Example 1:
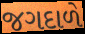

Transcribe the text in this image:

જગદાળે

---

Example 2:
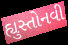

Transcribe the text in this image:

હ્યુસ્તોનવી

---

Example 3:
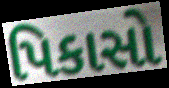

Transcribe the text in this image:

પિકાસો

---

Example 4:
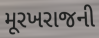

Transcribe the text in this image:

મૂરખરાજની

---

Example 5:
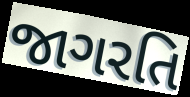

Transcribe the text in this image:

જાગરતિ